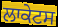
ਲਾਕੇਟਸ